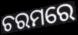
ଚରମରେ